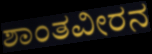
ಶಾಂತವೀರನ